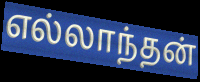
எல்லாந்தன்